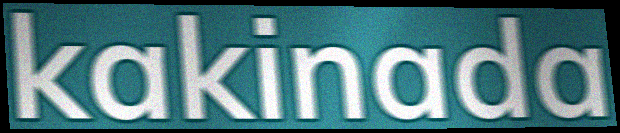
kakinada